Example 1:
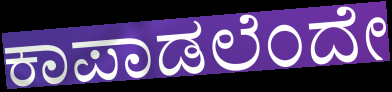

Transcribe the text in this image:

ಕಾಪಾಡಲೆಂದೇ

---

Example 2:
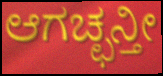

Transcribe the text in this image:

ಆಗಚ್ಛನ್ತೀ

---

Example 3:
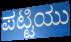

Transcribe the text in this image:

ಪಟ್ಟಿಯು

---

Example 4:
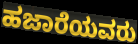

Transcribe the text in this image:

ಹಜಾರೆಯವರು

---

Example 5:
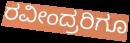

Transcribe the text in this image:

ರವೀಂದ್ರರಿಗೂ